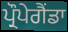
ਪ੍ਰੌਪੇਗੈਂਡਾ